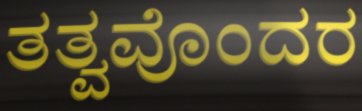
ತತ್ವವೊಂದರ